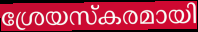
ശ്രേയസ്കരമായി